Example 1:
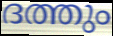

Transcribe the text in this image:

ദത്തും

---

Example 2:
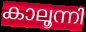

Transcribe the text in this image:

കാലൂന്നി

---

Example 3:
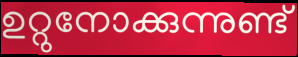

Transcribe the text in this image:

ഉറ്റുനോക്കുന്നുണ്ട്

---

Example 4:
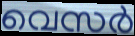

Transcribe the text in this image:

വെസർ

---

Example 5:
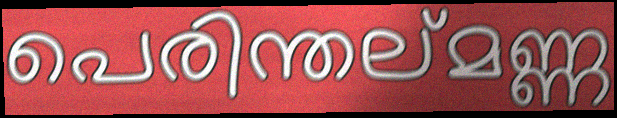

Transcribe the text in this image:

പെരിന്തല്മണ്ണ